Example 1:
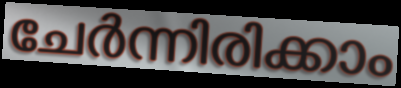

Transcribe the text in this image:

ചേർന്നിരിക്കാം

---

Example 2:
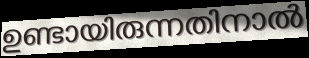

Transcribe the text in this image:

ഉണ്ടായിരുന്നതിനാൽ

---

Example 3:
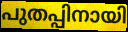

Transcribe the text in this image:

പുതപ്പിനായി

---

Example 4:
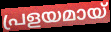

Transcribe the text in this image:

പ്രളയമായ്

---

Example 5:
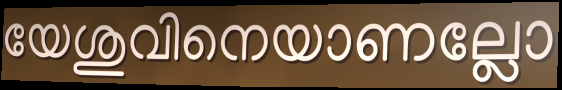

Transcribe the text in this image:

യേശുവിനെയാണല്ലോ